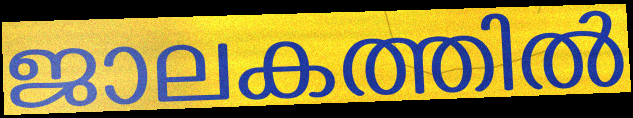
ജാലകത്തിൽ